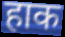
हाक